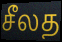
சீலத